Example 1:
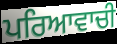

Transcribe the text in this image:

ਪਰਿਆਵਾਚੀ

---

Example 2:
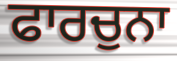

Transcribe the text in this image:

ਫਾਰਚੁਨਾ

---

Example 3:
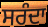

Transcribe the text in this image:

ਸਰੰਦਾ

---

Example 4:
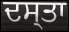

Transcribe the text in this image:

ਦਸ੍ਤਾ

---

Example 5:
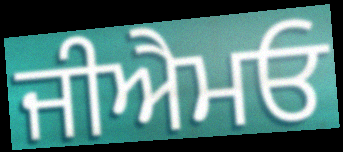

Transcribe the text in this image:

ਜੀਐਮਓ